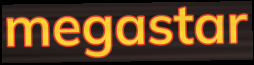
megastar